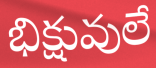
భిక్షువులే